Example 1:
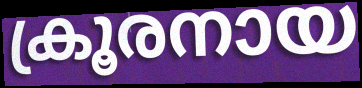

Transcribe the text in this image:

ക്രൂരനായ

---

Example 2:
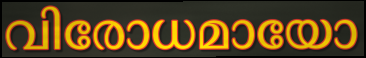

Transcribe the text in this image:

വിരോധമായോ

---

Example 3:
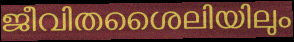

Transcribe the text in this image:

ജീവിതശൈലിയിലും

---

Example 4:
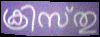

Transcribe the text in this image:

ക്രിസ്‌തു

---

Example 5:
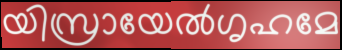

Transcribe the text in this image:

യിസ്രായേൽഗൃഹമേ